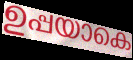
ഉപ്പയാകെ